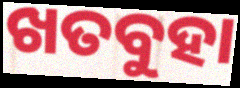
ଖତବୁହା